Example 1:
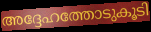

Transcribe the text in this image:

അദ്ദേഹത്തോടുകൂടി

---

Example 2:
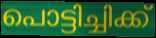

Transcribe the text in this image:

പൊട്ടിച്ചിക്ക്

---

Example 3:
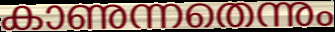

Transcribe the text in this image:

കാണുന്നതെന്നും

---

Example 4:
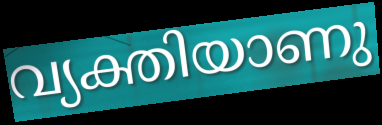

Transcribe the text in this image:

വ്യക്തിയാണു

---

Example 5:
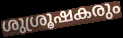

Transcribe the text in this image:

ശുശ്രൂഷകരും